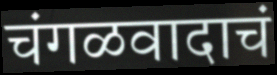
चंगळवादाचं